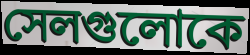
সেলগুলোকে